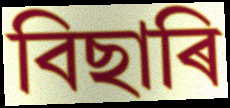
বিছাৰি